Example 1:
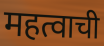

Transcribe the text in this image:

महत्वाची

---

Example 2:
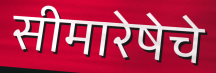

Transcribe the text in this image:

सीमारेषेचे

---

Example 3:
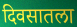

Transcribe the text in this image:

दिवसातला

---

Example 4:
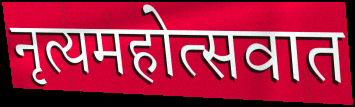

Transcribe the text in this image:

नृत्यमहोत्सवात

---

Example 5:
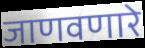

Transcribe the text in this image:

जाणवणारे